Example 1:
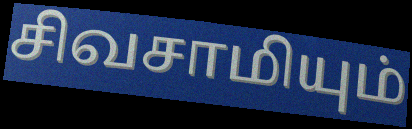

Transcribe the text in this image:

சிவசாமியும்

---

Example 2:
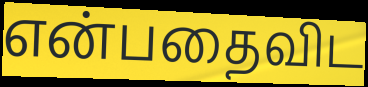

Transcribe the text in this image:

என்பதைவிட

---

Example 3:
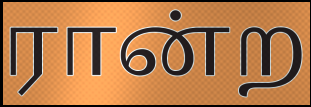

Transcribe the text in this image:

ரான்ற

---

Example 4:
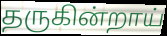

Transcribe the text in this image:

தருகின்றாய்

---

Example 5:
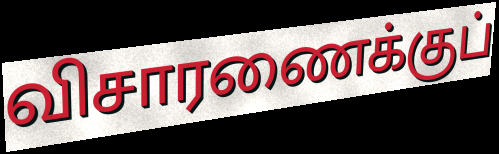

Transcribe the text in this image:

விசாரணைக்குப்